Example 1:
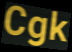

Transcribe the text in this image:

Cgk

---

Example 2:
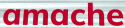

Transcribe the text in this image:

amache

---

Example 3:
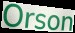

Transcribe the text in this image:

Orson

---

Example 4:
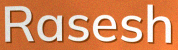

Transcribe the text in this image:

Rasesh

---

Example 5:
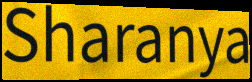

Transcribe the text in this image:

Sharanya